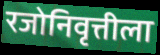
रजोनिवृत्तीला